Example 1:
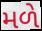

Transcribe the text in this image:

મળે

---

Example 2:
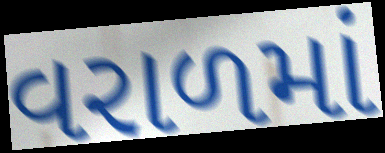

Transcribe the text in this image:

વરાળમાં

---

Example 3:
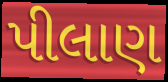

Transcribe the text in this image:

પીલાણ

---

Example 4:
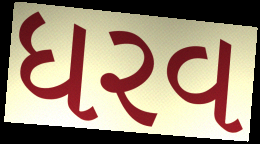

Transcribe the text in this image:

ધરવ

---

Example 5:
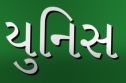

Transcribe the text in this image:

યુનિસ